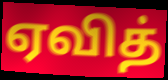
ஏவித்